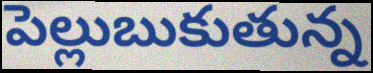
పెల్లుబుకుతున్న